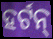
ହର୍ଟନ୍